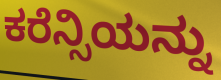
ಕರೆನ್ಸಿಯನ್ನು